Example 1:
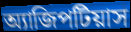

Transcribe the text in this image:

অ্যাজিপটিয়াস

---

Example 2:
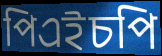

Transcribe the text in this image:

পিএইচপি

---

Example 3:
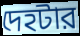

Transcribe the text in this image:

দেহটার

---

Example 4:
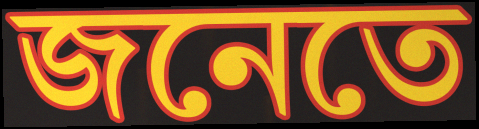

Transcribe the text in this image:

জনেতে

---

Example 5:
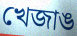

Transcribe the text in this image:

খেজাঙ